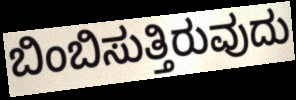
ಬಿಂಬಿಸುತ್ತಿರುವುದು